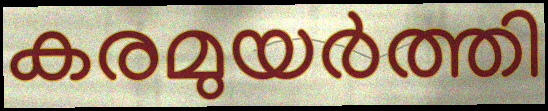
കരമുയർത്തി